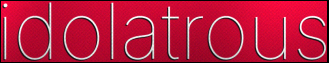
idolatrous